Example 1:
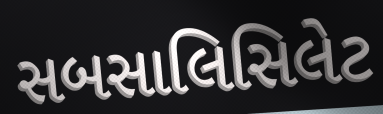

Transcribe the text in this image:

સબસાલિસિલેટ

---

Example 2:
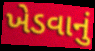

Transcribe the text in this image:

ખેડવાનું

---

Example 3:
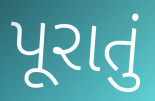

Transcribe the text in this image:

પૂરાતું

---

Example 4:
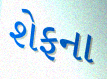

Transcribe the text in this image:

શેફના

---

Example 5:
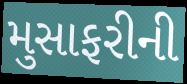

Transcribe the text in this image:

મુસાફરીની